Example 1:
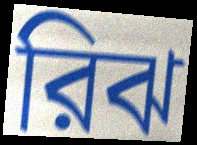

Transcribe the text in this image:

রিঝ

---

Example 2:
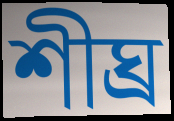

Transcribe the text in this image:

শীঘ্র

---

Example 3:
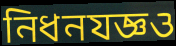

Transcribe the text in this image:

নিধনযজ্ঞও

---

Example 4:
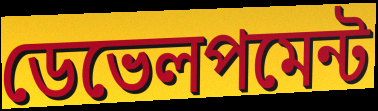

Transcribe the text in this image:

ডেভেলপমেন্ট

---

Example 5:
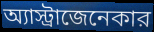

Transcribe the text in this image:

অ্যাস্ট্রাজেনেকার